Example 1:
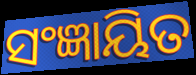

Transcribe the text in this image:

ସଂଜ୍ଞାୟିତ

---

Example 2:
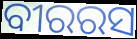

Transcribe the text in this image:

ବୀରରସ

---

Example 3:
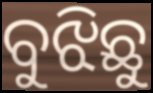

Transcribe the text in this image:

ବୁଝିଛୁ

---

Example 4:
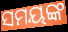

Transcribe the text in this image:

ସମୟଙ୍କ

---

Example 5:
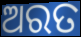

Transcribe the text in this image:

ଅରତ